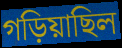
গড়িয়াছিল